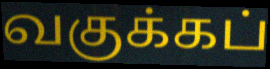
வகுக்கப்